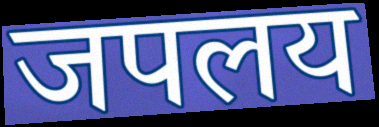
जपलय